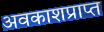
अवकाशप्राप्त